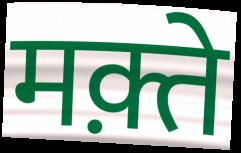
मक़्ते